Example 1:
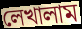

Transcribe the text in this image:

লেখালাম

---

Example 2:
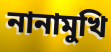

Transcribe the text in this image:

নানামুখি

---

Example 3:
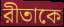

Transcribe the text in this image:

রীতাকে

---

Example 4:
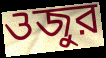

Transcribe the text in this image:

ওজুর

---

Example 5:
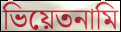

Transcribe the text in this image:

ভিয়েতনামি